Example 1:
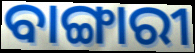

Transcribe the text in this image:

ବାଙ୍ଗାରୀ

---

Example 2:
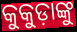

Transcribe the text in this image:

କୁକୁଡ଼ାଙ୍କୁ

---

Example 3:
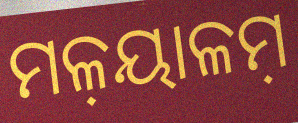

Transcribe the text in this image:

ମଳ଼ୟାଳମ଼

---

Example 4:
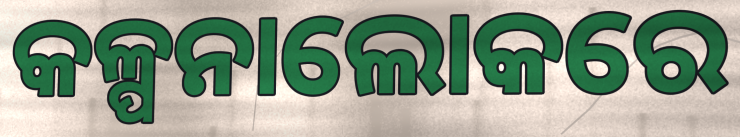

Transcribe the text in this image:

କଳ୍ପନାଲୋକରେ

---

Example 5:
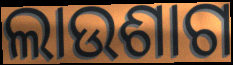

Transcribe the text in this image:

ଲାଉଶାଗ